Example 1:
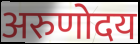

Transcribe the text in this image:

अरुणोदय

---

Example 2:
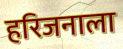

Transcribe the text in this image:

हरिजनाला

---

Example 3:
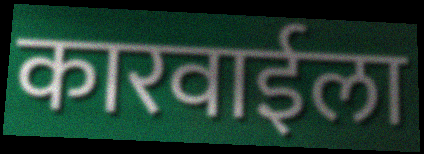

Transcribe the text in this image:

कारवाईला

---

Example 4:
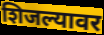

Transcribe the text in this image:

शिजल्यावर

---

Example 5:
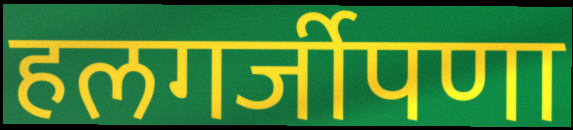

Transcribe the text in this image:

हलगर्जीपणा